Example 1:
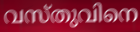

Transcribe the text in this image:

വസ്തുവിനെ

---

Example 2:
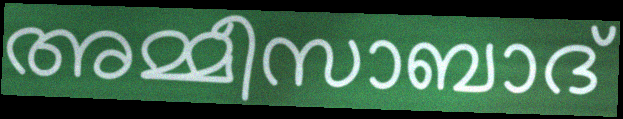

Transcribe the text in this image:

അമ്മീസാബാദ്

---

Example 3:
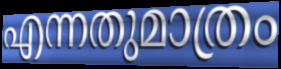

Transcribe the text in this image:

എന്നതുമാത്രം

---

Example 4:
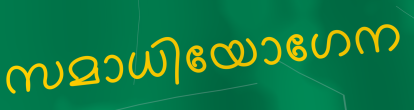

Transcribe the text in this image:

സമാധിയോഗേന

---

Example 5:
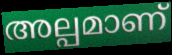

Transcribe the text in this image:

അല്പമാണ്